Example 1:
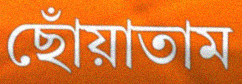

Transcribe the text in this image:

ছোঁয়াতাম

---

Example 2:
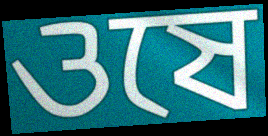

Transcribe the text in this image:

ওষে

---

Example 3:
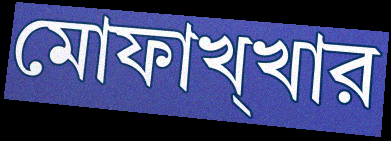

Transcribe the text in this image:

মোফাখ্খার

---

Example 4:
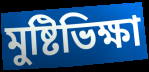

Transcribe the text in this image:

মুষ্টিভিক্ষা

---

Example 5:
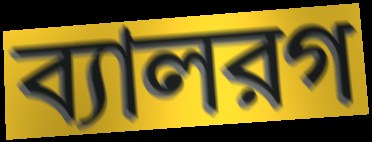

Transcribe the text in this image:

ব্যালরগ